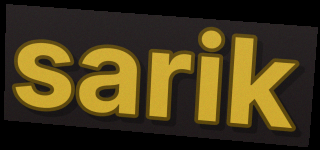
sarik